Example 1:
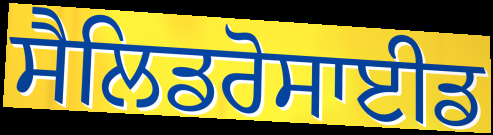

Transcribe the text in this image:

ਸੈਲਿਡਰੋਸਾਈਡ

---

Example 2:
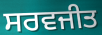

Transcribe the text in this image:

ਸਰਵਜੀਤ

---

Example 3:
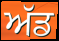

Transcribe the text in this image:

ਅੱਡ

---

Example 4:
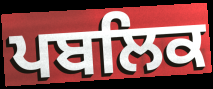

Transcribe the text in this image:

ਪਬਲਿਕ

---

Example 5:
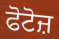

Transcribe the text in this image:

ਫੋਟੋਜ਼